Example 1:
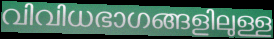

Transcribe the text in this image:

വിവിധഭാഗങ്ങളിലുള്ള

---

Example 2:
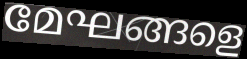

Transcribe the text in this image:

മേഘങ്ങളെ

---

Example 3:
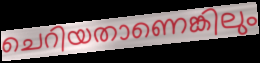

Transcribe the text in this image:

ചെറിയതാണെങ്കിലും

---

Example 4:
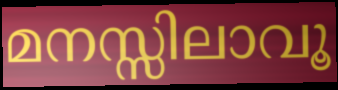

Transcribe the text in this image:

മനസ്സിലാവൂ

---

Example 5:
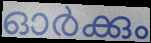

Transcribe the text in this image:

ഓർക്കും